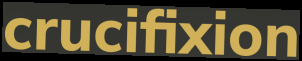
crucifixion